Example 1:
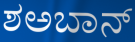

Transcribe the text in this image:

ಶಅಬಾನ್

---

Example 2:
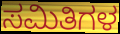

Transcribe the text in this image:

ಸಮಿತಿಗಳ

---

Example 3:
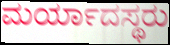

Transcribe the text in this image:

ಮರ್ಯಾದಸ್ಥರು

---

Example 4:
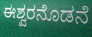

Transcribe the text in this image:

ಈಶ್ವರನೊಡನೆ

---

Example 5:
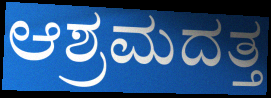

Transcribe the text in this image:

ಆಶ್ರಮದತ್ತ